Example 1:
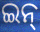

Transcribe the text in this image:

ଇନ୍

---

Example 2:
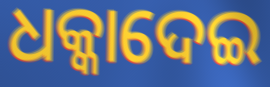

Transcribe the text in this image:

ଧକ୍କାଦେଇ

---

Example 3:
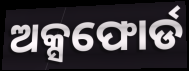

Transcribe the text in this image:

ଅକ୍ସଫୋର୍ଡ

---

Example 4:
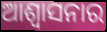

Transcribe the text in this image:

ଆଶ୍ୱାସନାର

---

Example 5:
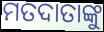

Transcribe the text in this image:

ମତଦାତାଙ୍କୁ